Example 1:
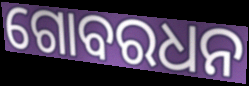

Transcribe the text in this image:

ଗୋବରଧନ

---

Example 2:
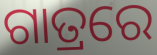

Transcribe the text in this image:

ଗାତ୍ରରେ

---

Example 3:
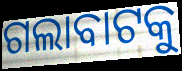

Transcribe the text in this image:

ଗଲାବାଟକୁ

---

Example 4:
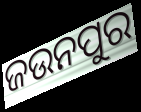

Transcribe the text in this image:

ଜଉନପୁର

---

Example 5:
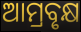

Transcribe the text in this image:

ଆମ୍ରବୃକ୍ଷ